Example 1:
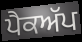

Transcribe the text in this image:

ਪੈਕਅੱਪ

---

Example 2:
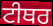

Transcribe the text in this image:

ਟੀਥਰ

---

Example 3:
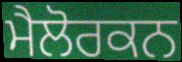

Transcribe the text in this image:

ਮੈਲੋਰਕਨ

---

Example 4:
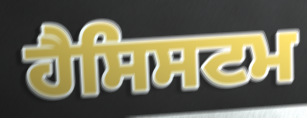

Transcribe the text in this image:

ਹੈਸਿਸਟਮ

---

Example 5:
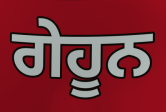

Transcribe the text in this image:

ਗੇਹੂਨ